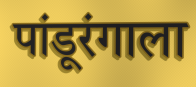
पांडूरंगाला